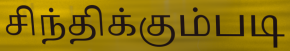
சிந்திக்கும்படி